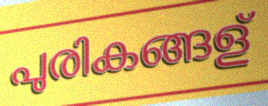
പുരികങ്ങള്